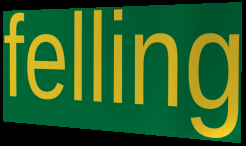
felling